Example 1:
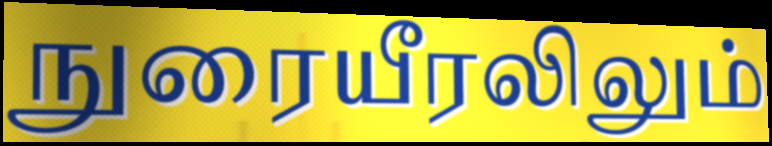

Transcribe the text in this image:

நுரையீரலிலும்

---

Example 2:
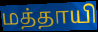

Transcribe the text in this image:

மத்தாயி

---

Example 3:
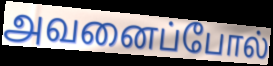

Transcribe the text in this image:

அவனைப்போல்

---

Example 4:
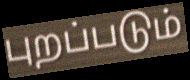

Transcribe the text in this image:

புறப்படும்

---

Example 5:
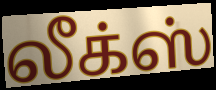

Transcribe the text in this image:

லீக்ஸ்